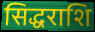
सिद्धराशि